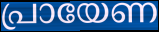
പ്രായേണ